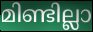
മിണ്ടില്ലാ